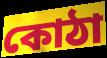
কোঠা